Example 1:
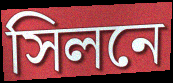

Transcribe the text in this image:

সিলনে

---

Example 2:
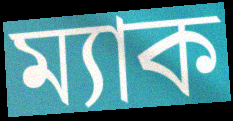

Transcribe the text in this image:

ম্যাক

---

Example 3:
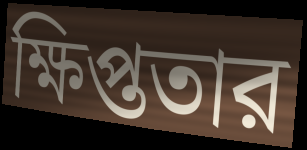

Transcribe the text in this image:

ক্ষিপ্ততার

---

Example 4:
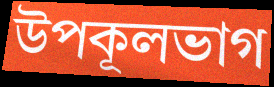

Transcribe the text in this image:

উপকূলভাগ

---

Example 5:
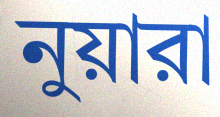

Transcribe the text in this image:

নুয়ারা